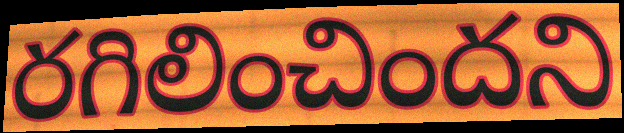
రగిలించిందని